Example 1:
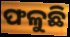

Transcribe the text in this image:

ଫଳୁଛି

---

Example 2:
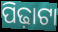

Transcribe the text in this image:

ପିଢ଼ାଟା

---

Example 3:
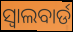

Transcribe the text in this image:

ସ୍ୱାଲବାର୍ଡ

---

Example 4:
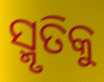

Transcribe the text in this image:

ସ୍ମୃତିକୁ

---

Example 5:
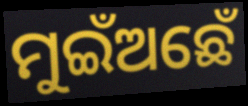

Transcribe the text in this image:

ମୁଇଁଅଛେଁ